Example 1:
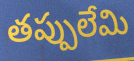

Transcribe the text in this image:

తప్పులేమి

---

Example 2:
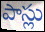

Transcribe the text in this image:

పాస్లు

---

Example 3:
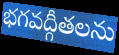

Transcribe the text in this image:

భగవద్గీతలను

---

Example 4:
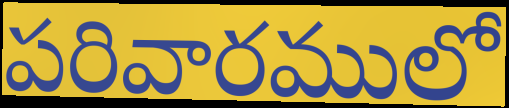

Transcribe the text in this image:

పరివారములో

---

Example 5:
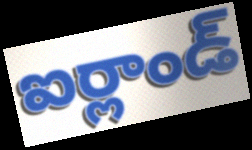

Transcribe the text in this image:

ఐర్లాండ్